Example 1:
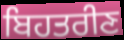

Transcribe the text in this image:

ਬਿਹਤਰੀਣ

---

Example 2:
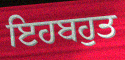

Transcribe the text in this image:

ਇਹਬਹੁਤ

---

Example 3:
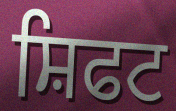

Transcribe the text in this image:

ਸ਼ਿਫਟ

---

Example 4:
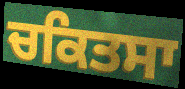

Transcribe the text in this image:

ਚਕਿਤਸਾ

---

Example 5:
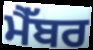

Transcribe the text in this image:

ਮੈੱਬਰ